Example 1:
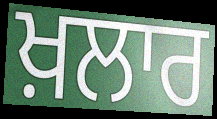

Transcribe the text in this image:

ਖ਼ਲਾਰ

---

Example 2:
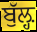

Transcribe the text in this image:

ਬੁੱਲ਼੍ਹ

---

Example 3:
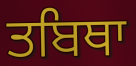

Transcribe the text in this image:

ਤਬਿਥਾ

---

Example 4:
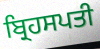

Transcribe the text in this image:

ਬ੍ਰਿਹਸਪਤੀ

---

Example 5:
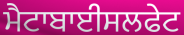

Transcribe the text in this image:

ਮੈਟਾਬਾਈਸਲਫੇਟ